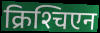
क्रिश्चिएन